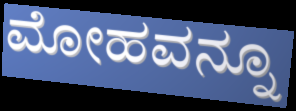
ಮೋಹವನ್ನೂ